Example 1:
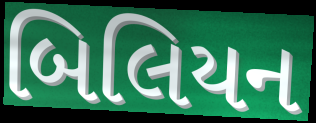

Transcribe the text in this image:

બિલિયન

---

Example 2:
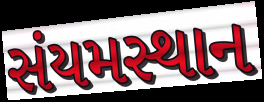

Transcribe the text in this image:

સંયમસ્થાન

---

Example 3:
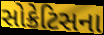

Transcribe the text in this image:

સોક્રેટિસના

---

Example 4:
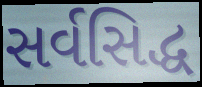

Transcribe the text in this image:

સર્વસિદ્ધ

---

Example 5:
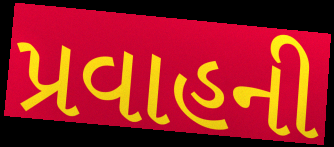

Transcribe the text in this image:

પ્રવાહની